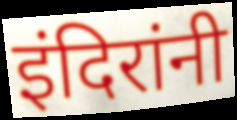
इंदिरांनी